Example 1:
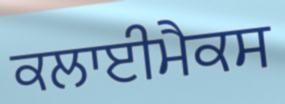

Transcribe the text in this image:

ਕਲਾਈਮੈਕਸ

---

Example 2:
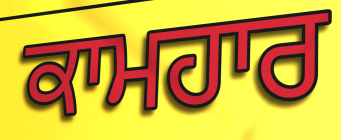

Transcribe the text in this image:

ਕਾਮਹਾਰ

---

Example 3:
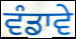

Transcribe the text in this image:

ਵੰਡਾਵੇ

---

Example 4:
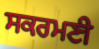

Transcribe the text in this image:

ਸਕਰਮਣੀ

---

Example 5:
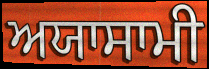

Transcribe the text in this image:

ਅਯਾਸਾਮੀ